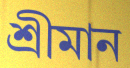
শ্রীমান